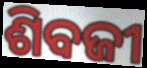
ଶିବଜୀ